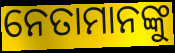
ନେତାମାନଙ୍କୁ